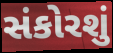
સંકોરશું